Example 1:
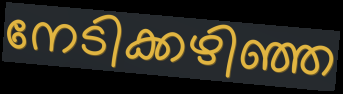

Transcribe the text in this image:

നേടിക്കഴിഞ്ഞ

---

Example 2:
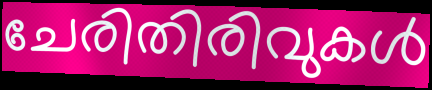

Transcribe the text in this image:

ചേരിതിരിവുകൾ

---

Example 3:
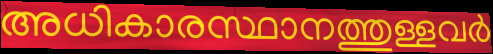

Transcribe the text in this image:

അധികാരസ്ഥാനത്തുള്ളവർ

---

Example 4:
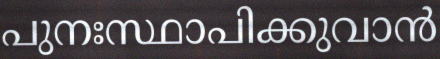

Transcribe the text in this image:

പുനഃസ്ഥാപിക്കുവാൻ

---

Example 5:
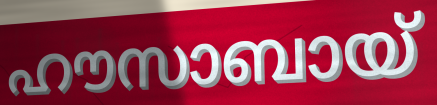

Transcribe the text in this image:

ഹൗസാബായ്